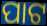
ପାଟ